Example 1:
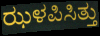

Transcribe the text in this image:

ಝಳಪಿಸಿತ್ತು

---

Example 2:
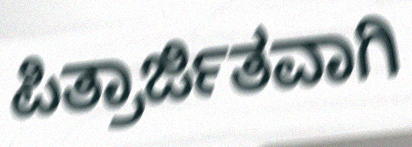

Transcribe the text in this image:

ಪಿತ್ರಾರ್ಜಿತವಾಗಿ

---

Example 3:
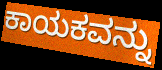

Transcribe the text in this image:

ಕಾಯಕವನ್ನು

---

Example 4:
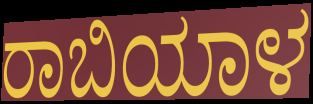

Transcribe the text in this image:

ರಾಬಿಯಾಳ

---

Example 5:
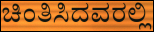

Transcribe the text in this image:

ಚಿಂತಿಸಿದವರಲ್ಲಿ